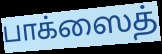
பாக்ஸைத்